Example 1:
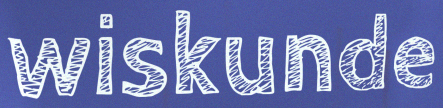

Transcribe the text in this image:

wiskunde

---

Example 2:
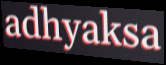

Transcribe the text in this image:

adhyaksa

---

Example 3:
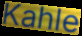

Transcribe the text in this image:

Kahle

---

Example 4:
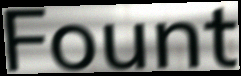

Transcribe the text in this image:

Fount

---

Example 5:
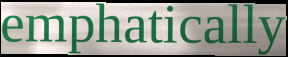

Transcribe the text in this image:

emphatically